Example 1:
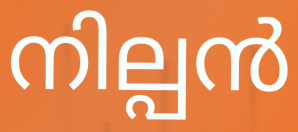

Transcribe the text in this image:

നില്പൻ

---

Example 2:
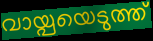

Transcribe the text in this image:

വായ്പയെടുത്ത്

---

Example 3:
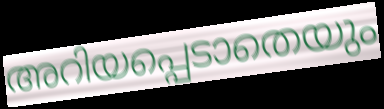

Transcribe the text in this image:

അറിയപ്പെടാതെയും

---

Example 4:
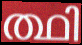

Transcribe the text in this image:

ത്ഥി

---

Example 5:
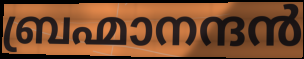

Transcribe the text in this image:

ബ്രഹ്മാനന്ദൻ